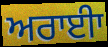
ਅਰਾਈਾ